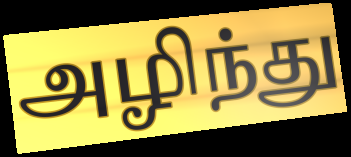
அழிந்து